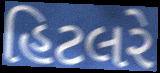
હિટલરે